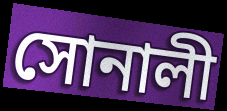
সোনালী